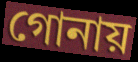
গোনায়